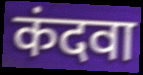
कंदवा